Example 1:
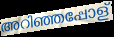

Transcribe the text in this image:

അറിഞ്ഞപ്പോള്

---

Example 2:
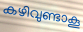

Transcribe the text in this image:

കഴിവുണ്ടാകൂ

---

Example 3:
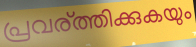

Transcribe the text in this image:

പ്രവര്ത്തിക്കുകയും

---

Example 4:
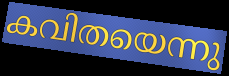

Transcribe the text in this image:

കവിതയെന്നു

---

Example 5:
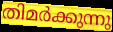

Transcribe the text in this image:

തിമർക്കുന്നു